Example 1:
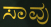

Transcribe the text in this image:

ಸಾವು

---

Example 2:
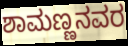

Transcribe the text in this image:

ಶಾಮಣ್ಣನವರ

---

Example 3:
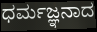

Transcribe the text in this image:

ಧರ್ಮಜ್ಞನಾದ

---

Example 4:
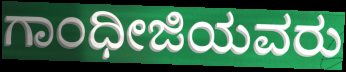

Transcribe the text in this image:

ಗಾಂಧೀಜಿಯವರು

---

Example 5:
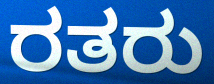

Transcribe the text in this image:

ರತರು